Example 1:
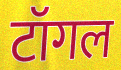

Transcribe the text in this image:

टॉगल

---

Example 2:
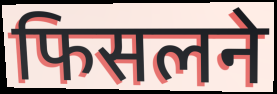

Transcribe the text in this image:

फिसलने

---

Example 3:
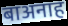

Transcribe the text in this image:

बाअनाह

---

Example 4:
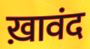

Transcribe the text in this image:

ख़ावंद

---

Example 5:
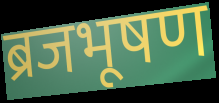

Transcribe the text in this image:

ब्रजभूषण